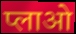
प्लाओ